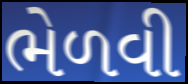
ભેળવી